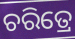
ଚରିତ୍ରେ